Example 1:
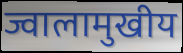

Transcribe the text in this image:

ज्वालामुखीय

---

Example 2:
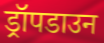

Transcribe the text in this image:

ड्रॉपडाउन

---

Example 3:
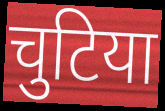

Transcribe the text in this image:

चुटिया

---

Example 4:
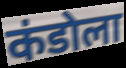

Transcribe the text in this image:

कंडोला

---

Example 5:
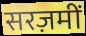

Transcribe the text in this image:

सरज़मीं